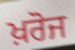
ਖ਼ਰੋਜ